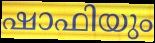
ഷാഫിയും